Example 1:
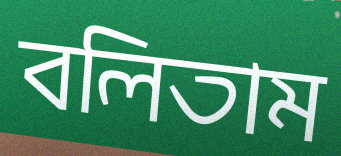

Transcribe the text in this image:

বলিতাম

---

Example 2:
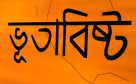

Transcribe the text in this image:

ভূতাবিষ্ট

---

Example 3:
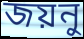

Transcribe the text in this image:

জয়নু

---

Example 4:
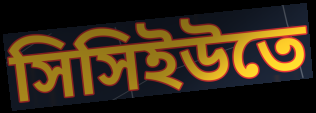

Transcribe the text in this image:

সিসিইউতে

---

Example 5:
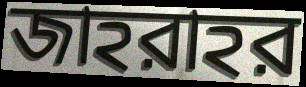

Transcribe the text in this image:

জাহরাহর